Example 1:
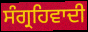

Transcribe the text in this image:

ਸੰਗ੍ਰਹਿਵਾਦੀ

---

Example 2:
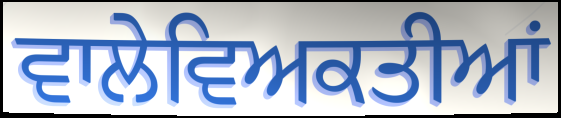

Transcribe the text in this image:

ਵਾਲੇਵਿਅਕਤੀਆਂ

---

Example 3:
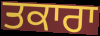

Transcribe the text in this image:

ਤਕਾਰਾ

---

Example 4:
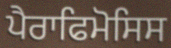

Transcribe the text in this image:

ਪੈਰਾਫਿਮੋਸਿਸ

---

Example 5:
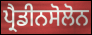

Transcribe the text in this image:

ਪ੍ਰੈਡੀਨਸੋਲੋਨ